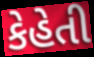
કેહેતી